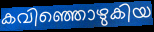
കവിഞ്ഞൊഴുകിയ